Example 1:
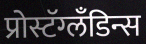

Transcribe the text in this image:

प्रोस्टॅग्लॅंडिन्स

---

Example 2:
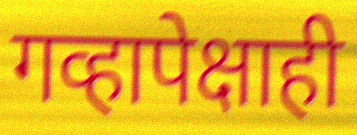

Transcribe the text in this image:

गव्हापेक्षाही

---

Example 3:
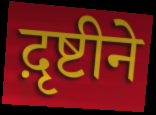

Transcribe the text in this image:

द़ृष्टीने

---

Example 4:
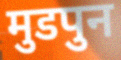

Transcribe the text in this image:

मुडपुन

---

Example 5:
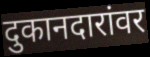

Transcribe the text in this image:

दुकानदारांवर